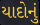
યાદોનું